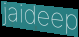
jaideep